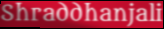
Shraddhanjali